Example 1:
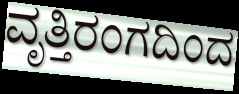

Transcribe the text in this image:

ವೃತ್ತಿರಂಗದಿಂದ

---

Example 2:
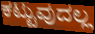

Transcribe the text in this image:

ಕಟ್ಟುವುದಲ್ಲ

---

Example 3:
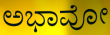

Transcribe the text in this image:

ಅಭಾವೋ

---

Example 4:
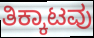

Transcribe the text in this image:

ತಿಕ್ಕಾಟವು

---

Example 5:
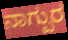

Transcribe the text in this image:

ನಾಗ್ಪುರ